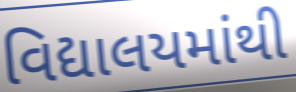
વિદ્યાલયમાંથી